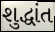
શુદ્ધાંત